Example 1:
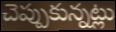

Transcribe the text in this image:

చెప్పుకున్నట్లు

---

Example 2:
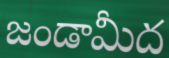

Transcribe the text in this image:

జండామీద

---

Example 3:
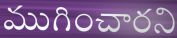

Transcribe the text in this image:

ముగించారని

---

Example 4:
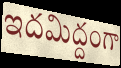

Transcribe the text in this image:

ఇదమిద్దంగా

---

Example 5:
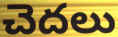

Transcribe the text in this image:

చెదలు